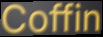
Coffin